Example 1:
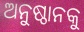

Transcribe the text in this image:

ଅନୁଷ୍ଠାନକୁ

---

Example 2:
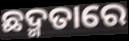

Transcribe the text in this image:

ଛଦ୍ମତାରେ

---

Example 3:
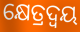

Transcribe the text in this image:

କ୍ଷେତ୍ରଦ୍ଵୟ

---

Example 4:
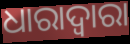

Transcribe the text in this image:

ଧାରାଦ୍ୱାରା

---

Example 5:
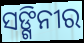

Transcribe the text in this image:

ସଙ୍ଗିନୀର